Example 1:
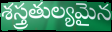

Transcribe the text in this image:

శస్త్రతుల్యమైన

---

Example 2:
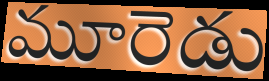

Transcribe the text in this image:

మూరెడు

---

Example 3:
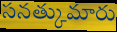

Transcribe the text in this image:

సనత్కుమారు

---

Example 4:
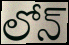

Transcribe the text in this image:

లోన్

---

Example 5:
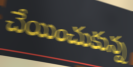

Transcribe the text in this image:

చేయించుకున్న